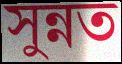
সুন্নত